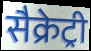
सैक्रेट्री